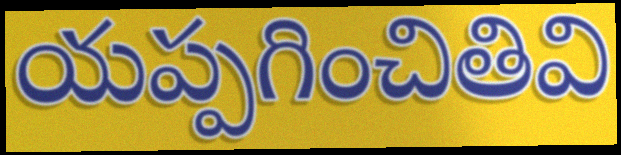
యప్పగించితివి